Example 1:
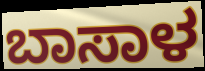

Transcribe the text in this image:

ಬಾಸಾಳ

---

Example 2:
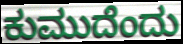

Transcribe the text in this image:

ಕುಮುದೆಂದು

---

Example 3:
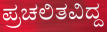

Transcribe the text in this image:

ಪ್ರಚಲಿತವಿದ್ದ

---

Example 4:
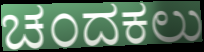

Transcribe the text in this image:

ಚಂದಕಲು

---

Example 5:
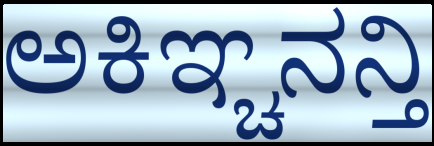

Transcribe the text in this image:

ಅಕಿಞ್ಚನನ್ತಿ